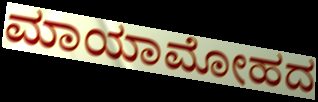
ಮಾಯಾಮೋಹದ